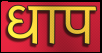
धाप